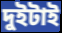
দুইটাই